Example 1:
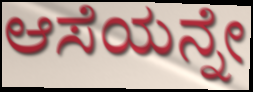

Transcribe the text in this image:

ಆಸೆಯನ್ನೇ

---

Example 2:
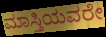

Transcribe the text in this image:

ಮಾಸ್ತಿಯವರೇ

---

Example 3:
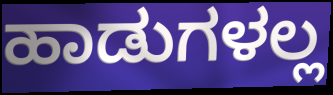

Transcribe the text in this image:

ಹಾಡುಗಳಲ್ಲ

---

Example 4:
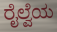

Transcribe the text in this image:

ರೈಲ್ವೆಯ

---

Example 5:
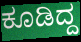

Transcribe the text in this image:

ಕೂಡಿದ್ದ